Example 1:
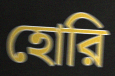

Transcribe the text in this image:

হোরি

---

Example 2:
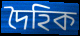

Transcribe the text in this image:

দৈহিক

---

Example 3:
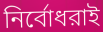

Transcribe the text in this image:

নির্বোধরাই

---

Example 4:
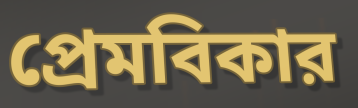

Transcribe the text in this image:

প্রেমবিকার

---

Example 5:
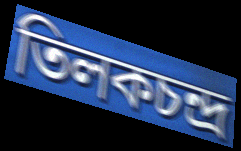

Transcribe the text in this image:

তিলকচন্দ্র